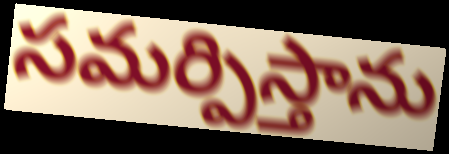
సమర్పిస్తాను